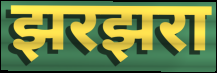
झरझरा